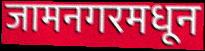
जामनगरमधून